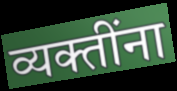
व्यक्‍तींना